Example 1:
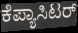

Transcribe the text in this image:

ಕೆಪ್ಯಾಸಿಟರ್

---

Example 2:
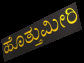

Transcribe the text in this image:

ಹೊತ್ತುಮೀರಿ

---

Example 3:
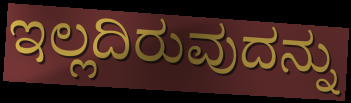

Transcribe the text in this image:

ಇಲ್ಲದಿರುವುದನ್ನು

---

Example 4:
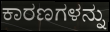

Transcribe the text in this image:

ಕಾರಣಗಳನ್ನು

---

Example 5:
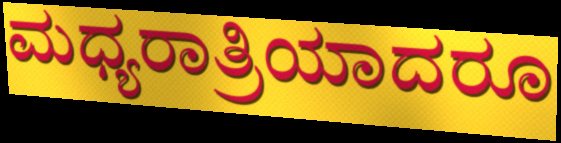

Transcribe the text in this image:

ಮಧ್ಯರಾತ್ರಿಯಾದರೂ